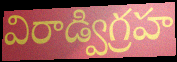
విరాడ్విగ్రహ